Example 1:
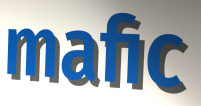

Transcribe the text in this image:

mafic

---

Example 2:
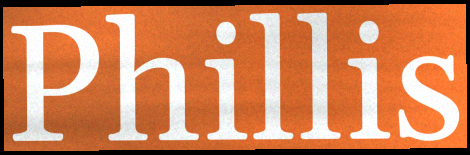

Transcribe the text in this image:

Phillis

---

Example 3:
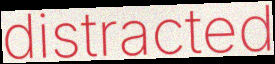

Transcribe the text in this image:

distracted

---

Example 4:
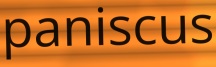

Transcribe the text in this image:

paniscus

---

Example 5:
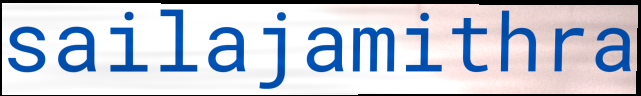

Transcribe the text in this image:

sailajamithra